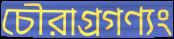
চৌরাগ্রগণ্যং